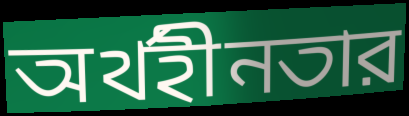
অর্থহীনতার